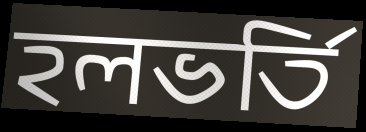
হলভর্তি